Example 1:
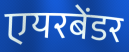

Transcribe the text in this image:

एयरबेंडर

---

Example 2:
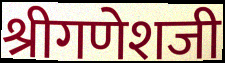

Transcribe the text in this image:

श्रीगणेशजी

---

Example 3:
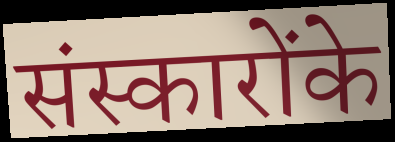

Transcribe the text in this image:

संस्कारोंके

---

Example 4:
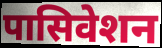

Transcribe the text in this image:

पासिवेशन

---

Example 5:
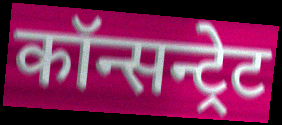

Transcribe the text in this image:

कॉन्सन्ट्रेट